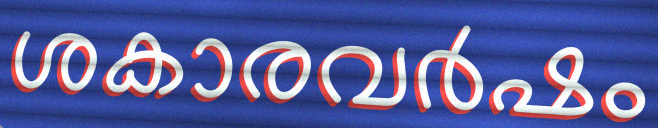
ശകാരവർഷം